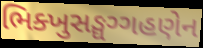
ભિક્ખુસઙ્ઘગ્ગહણેન